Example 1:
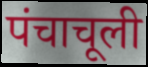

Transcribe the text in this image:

पंचाचूली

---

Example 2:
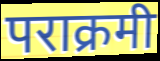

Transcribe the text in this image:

पराक्रमी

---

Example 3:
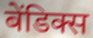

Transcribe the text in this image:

बेंडिक्स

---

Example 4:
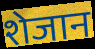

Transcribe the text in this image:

शेजान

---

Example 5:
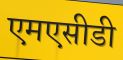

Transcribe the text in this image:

एमएसीडी